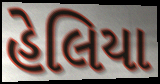
હેલિયા